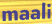
maali